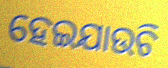
ହେଇଯାଉଚି